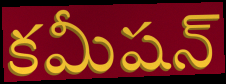
కమీషన్